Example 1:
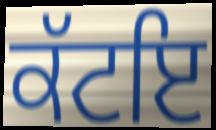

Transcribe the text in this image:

ਕੱਟਇ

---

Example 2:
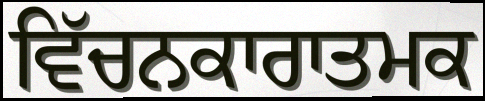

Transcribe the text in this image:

ਵਿੱਚਨਕਾਰਾਤਮਕ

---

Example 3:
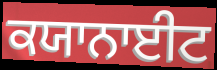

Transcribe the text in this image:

ਕਯਾਨਾਈਟ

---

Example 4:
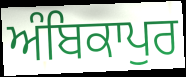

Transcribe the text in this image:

ਅੰਬਿਕਾਪੁਰ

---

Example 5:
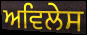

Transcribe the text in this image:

ਅਵਿਲੇਸ